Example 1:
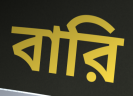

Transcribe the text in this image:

বারি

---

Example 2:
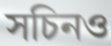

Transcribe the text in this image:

সচিনও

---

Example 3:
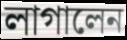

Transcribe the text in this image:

লাগালেন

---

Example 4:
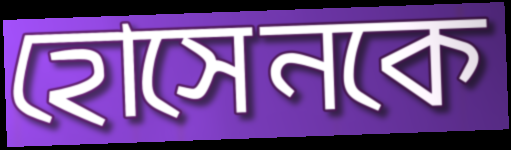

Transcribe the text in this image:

হোসেনকে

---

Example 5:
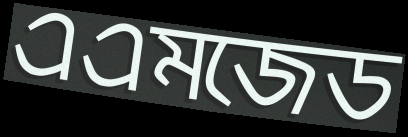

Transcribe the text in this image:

এএমজেড